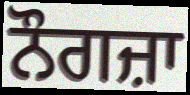
ਨੌਗਜ਼ਾ